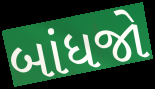
બાંધજો